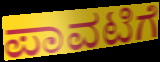
ಪಾವಟಿಗೆ